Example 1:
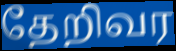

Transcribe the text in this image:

தேறிவர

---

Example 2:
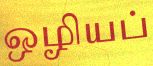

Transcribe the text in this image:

ஒழியப்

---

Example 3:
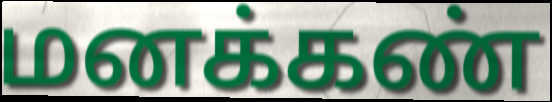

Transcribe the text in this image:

மனக்கண்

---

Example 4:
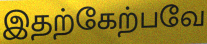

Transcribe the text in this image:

இதற்கேற்பவே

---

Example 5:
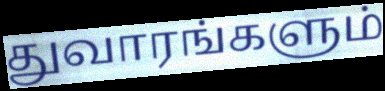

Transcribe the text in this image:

துவாரங்களும்